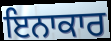
ਇਨਾਕਾਰ